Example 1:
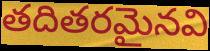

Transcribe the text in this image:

తదితరమైనవి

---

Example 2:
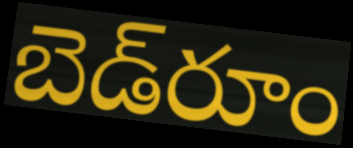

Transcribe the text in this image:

బెడ్‌రూం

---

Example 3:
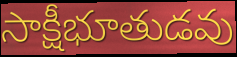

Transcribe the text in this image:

సాక్షీభూతుడవు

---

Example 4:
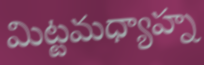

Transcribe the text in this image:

మిట్టమధ్యాహ్న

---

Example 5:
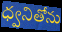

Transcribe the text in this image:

ధ్వనితోను